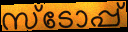
സ്ടോപ്പ്